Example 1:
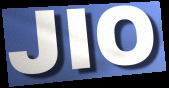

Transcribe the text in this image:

JIO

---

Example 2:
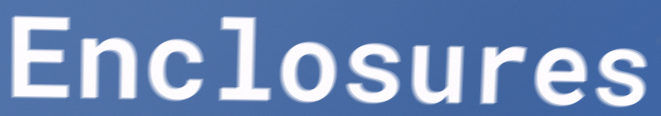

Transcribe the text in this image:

Enclosures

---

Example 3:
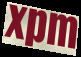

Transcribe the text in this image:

xpm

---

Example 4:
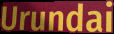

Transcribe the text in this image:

Urundai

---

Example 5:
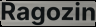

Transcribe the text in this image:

Ragozin